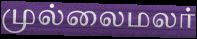
முல்லைமலர்